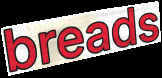
breads